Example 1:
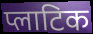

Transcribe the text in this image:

प्लाटिक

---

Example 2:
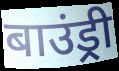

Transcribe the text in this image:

बाउंड्री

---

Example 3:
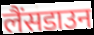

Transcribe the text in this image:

लैंसडाउन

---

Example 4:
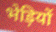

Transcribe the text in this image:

भेड़ियों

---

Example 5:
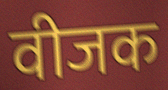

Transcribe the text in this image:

वीजक